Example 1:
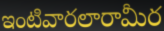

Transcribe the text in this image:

ఇంటివారలారామీర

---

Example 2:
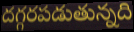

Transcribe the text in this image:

దగ్గరపడుతున్నది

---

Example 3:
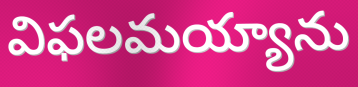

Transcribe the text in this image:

విఫలమయ్యాను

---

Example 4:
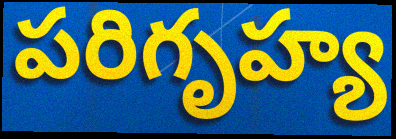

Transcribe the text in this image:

పరిగృహ్య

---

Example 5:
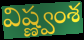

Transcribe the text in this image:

విష్ణ్వంశ